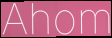
Ahom